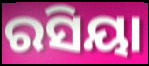
ରସିୟା